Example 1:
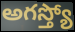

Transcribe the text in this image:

అగస్త్యో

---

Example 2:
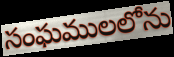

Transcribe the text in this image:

సంఘములలోను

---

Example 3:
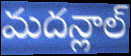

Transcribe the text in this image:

మదన్లాల్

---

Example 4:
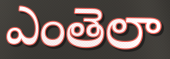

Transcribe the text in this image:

ఎంతెలా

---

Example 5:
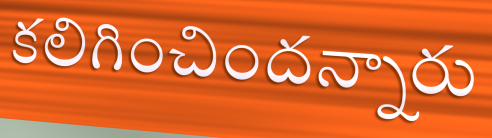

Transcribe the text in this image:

కలిగించిందన్నారు